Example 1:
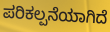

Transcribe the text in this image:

ಪರಿಕಲ್ಪನೆಯಾಗಿದೆ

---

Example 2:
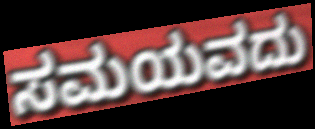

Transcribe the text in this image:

ಸಮಯವದು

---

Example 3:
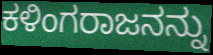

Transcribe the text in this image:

ಕಳಿಂಗರಾಜನನ್ನು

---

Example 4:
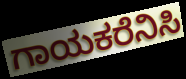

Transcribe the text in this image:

ಗಾಯಕರೆನಿಸಿ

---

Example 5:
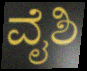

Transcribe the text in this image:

ವೈಶಿ